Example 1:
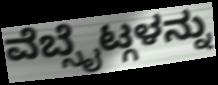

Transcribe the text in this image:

ವೆಬ್ಸೈಟ್ಗಳನ್ನು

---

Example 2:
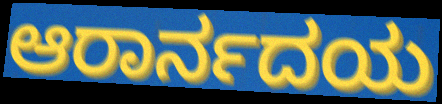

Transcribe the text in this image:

ಆರಾರ್ನದಯ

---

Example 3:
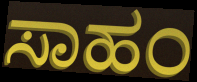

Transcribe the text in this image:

ಸಾಹಂ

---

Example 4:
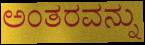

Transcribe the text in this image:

ಅಂತರವನ್ನು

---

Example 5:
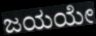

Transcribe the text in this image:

ಜಯಯೇ